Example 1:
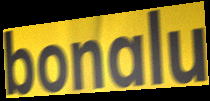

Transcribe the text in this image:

bonalu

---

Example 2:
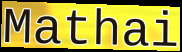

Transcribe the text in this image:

Mathai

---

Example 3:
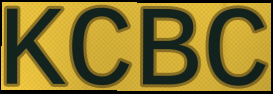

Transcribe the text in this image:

KCBC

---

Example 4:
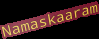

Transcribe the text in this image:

Namaskaaram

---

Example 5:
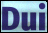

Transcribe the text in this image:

Dui